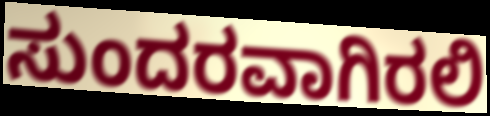
ಸುಂದರವಾಗಿರಲಿ